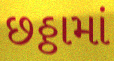
છઠ્ઠામાં